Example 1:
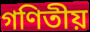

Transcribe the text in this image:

গণিতীয়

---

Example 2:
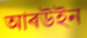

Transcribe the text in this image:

আৰউইন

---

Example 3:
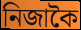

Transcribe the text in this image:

নিজাকৈ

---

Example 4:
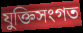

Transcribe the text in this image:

যুক্তিসংগত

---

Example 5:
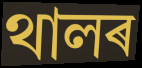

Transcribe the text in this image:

থালৰ